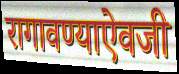
रागावण्याऐवजी